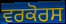
ਵਰਕੋਰਸ